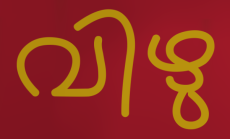
വിഴു